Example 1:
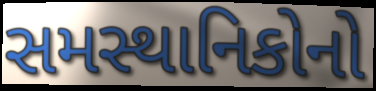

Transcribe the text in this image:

સમસ્થાનિકોનો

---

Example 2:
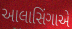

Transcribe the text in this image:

આલાસિંગાએ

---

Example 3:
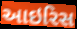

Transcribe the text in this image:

આઇરિસ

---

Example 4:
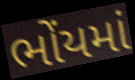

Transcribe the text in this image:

ભોંયમાં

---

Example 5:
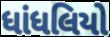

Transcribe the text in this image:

ધાંધલિયો